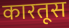
कारतूस